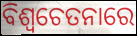
ବିଶ୍ୱଚେତନାରେ